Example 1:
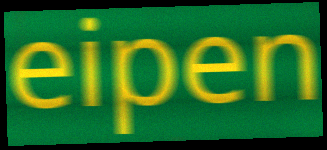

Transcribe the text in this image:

eipen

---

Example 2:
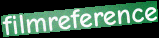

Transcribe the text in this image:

filmreference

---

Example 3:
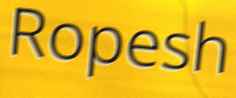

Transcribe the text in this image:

Ropesh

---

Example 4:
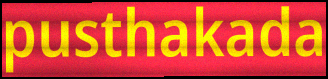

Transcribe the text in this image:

pusthakada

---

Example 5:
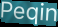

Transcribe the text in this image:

Peqin